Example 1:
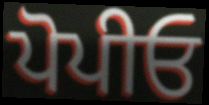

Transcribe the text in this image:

ਪੋਪੀਓ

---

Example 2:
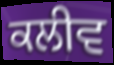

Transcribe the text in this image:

ਕਲੀਵ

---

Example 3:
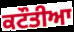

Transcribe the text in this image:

ਕਟੌਤੀਆ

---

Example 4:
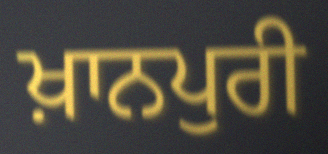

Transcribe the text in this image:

ਖ਼ਾਨਪੁਰੀ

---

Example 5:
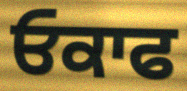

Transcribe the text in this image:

ਓਕਾਫ